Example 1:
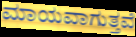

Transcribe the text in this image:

ಮಾಯವಾಗುತ್ತವೆ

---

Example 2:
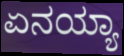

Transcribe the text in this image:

ಏನಯ್ಯಾ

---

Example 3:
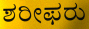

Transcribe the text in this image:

ಶರೀಫರು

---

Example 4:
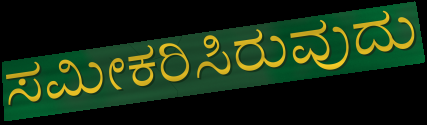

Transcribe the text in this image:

ಸಮೀಕರಿಸಿರುವುದು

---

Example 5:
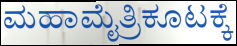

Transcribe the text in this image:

ಮಹಾಮೈತ್ರಿಕೂಟಕ್ಕೆ